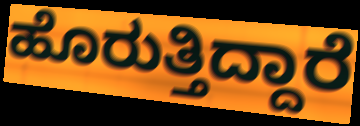
ಹೊರುತ್ತಿದ್ದಾರೆ